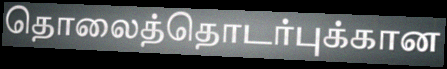
தொலைத்தொடர்புக்கான